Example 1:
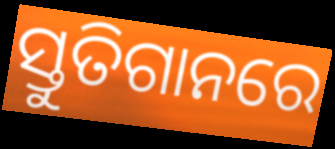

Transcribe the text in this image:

ସ୍ତୁତିଗାନରେ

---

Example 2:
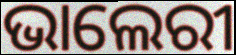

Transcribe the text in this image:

ଭାଲେରୀ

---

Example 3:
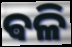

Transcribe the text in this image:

ଵଳି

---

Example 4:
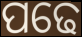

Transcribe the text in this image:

ପଢେ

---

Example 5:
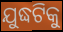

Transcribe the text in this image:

ଯୁଦ୍ଧଟିକୁ